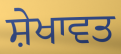
ਸ਼ੇਖਾਵਤ